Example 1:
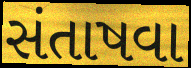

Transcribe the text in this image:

સંતાષવા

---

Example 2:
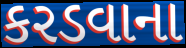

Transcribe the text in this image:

કરડવાના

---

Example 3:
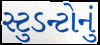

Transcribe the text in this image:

સ્ટુડન્ટોનું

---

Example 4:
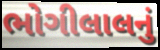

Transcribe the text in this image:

ભોગીલાલનું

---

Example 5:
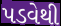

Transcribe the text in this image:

પડવેથી